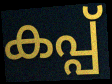
കപ്പ്